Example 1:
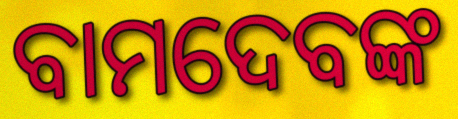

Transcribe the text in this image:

ବାମଦେବଙ୍କ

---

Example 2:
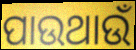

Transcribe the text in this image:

ପାଉଥାଉଁ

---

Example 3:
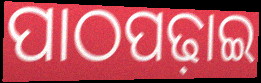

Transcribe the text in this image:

ପାଠପଢ଼ାଇ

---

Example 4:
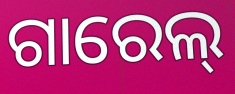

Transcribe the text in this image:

ଗାରେଲ୍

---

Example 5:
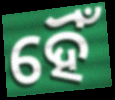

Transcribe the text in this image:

ହୈଁ